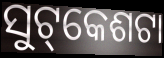
ସୁଟ୍‌କେଶଟା